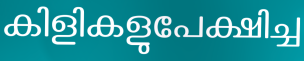
കിളികളുപേക്ഷിച്ച